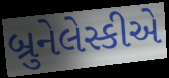
બ્રુનેલેસ્કીએ